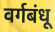
वर्गबंधू